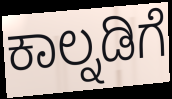
ಕಾಲ್ನಡಿಗೆ